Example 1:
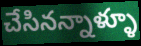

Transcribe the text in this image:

చేసినన్నాళ్ళూ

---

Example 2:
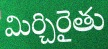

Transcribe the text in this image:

మిర్చిరైతు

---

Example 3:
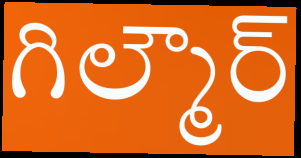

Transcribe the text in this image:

గిల్మౌర్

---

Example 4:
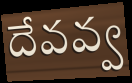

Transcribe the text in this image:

దేవవ్వ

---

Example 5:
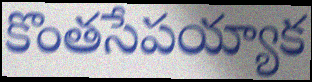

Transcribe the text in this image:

కొంతసేపయ్యాక